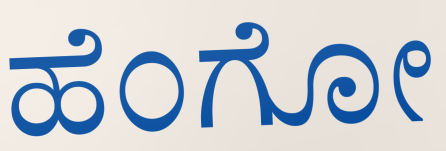
ಹೆಂಗೋ